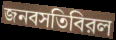
জনবসতিবিরল